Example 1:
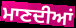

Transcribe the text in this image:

ਮਾਣਦੀਆਂ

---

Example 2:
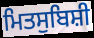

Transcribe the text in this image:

ਮਿਤਸੁਬਿਸ਼ੀ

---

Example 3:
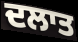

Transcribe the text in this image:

ਦਲਾਤ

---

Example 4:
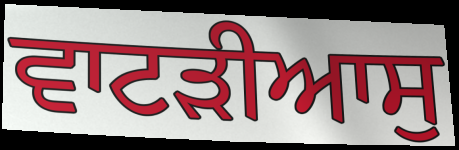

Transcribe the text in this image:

ਵਾਟੜੀਆਸੁ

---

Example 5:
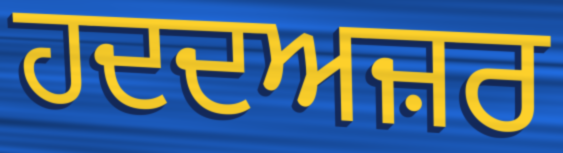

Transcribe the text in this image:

ਹਦਦਅਜ਼ਰ